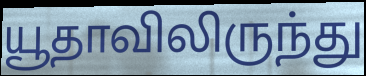
யூதாவிலிருந்து